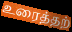
உரைத்தற்